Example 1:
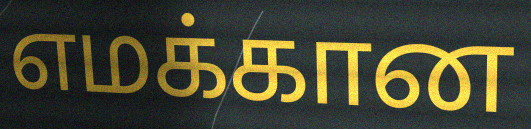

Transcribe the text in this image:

எமக்கான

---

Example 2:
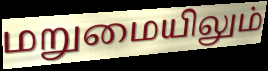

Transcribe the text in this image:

மறுமையிலும்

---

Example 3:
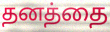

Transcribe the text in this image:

தனத்தை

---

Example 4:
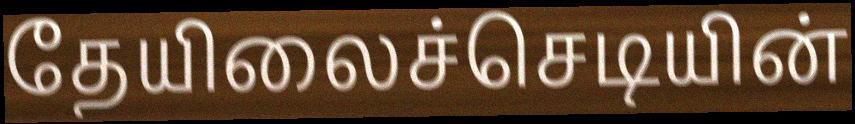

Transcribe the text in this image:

தேயிலைச்செடியின்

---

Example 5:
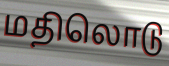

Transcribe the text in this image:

மதிலொடு